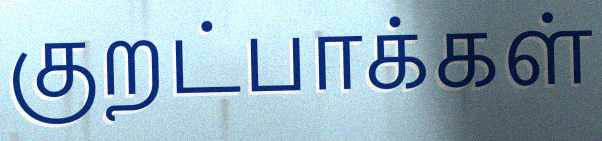
குறட்பாக்கள்